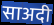
साअदी